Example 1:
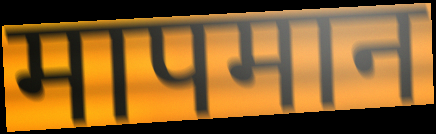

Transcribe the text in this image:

मापमान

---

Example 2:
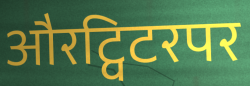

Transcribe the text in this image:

औरट्विटरपर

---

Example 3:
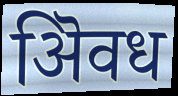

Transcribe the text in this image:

ऄिवध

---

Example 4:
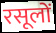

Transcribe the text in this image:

रसूलों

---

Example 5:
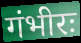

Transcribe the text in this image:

गंभीरः